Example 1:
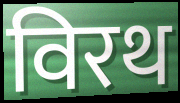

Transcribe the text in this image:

विरथ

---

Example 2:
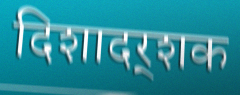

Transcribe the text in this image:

दिशादर्शक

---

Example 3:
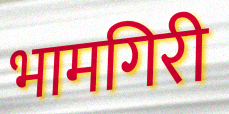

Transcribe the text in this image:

भामगिरी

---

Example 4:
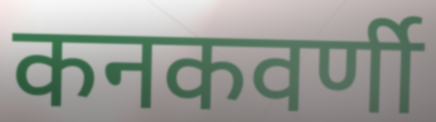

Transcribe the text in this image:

कनकवर्णी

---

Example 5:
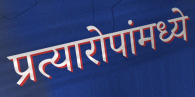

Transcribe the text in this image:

प्रत्यारोपांमध्ये